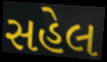
સહેલ